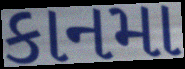
કાનમા